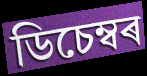
ডিচেম্বৰ